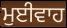
ਮੁਈਵਾਹ